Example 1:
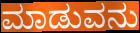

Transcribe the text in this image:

ಮಾಡುವನು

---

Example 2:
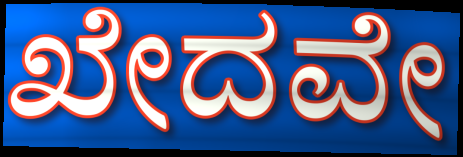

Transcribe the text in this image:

ಖೇದವೇ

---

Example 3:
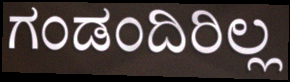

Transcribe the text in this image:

ಗಂಡಂದಿರಿಲ್ಲ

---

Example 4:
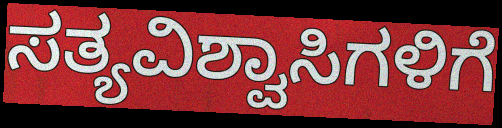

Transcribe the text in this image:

ಸತ್ಯವಿಶ್ವಾಸಿಗಳಿಗೆ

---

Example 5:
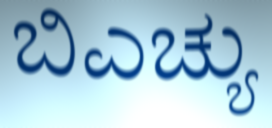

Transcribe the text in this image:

ಬಿಎಚ್ಯು